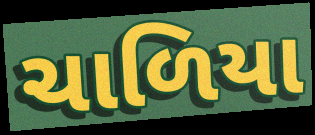
ચાળિયા